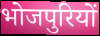
भोजपुरियों